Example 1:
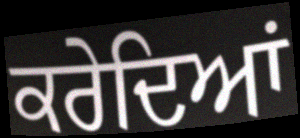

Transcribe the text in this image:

ਕਰੇਦਿਆਂ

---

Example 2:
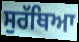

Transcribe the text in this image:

ਸੁਰੱਥਿਆ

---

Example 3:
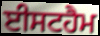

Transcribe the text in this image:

ਈਸਟਹੈਮ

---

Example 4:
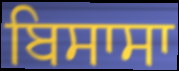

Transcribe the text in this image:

ਬਿਸਾਸਾ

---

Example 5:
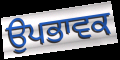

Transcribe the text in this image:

ਉਪਭਾਵਕ